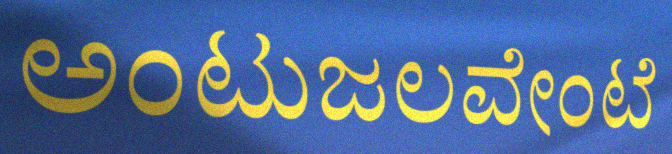
ಅಂಟುಜಲವೇಂಟೆ